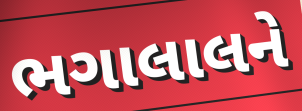
ભગાલાલને